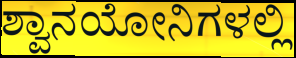
ಶ್ವಾನಯೋನಿಗಳಲ್ಲಿ